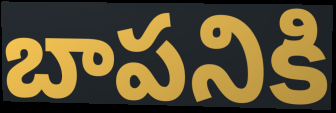
బాపనికి